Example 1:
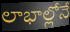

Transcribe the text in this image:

లాభాల్లోనే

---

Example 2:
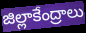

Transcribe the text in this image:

జిల్లాకేంద్రాలు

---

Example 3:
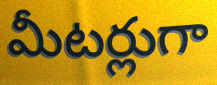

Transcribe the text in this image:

మీటర్లుగా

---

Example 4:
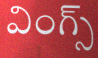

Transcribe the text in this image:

వింగ్స్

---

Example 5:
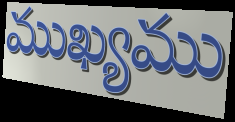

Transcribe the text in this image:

ముఖ్యము